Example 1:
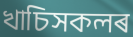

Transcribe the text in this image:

খাচিসকলৰ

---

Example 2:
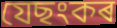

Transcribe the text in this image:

যেছংকৰ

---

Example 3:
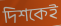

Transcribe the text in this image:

দিশকেই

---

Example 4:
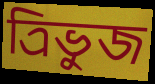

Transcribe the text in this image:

ত্ৰিভুজ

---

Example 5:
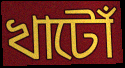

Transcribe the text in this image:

খাটোঁ